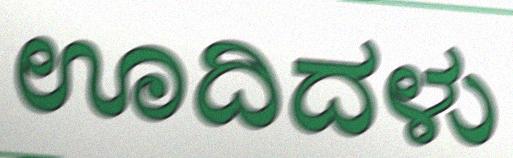
ಊದಿದಳು